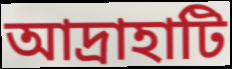
আদ্রাহাটি